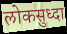
लोकसुध्दा